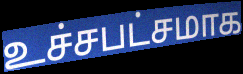
உச்சபட்சமாக